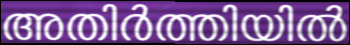
അതിർത്തിയിൽ